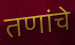
तणांचे